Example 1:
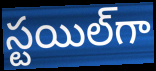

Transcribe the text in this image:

స్టయిల్‌గా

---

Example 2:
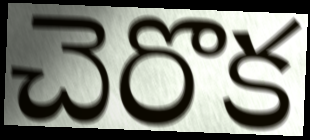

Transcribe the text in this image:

చెరొక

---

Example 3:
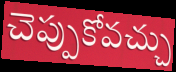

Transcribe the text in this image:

చెప్పుకోవచ్చు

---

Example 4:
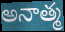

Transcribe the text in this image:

అనాత్మ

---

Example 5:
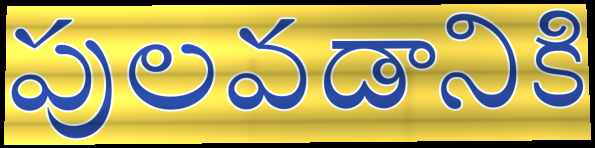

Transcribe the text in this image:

పులవడానికి